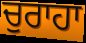
ਚੁਰਾਹਾ